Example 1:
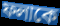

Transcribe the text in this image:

ফলাকে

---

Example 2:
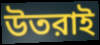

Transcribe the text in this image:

উতরাই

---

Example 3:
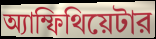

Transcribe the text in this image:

অ্যাম্ফিথিয়েটার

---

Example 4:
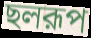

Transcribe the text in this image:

ছলরূপ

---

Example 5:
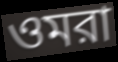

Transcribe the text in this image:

ওমরা